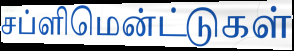
சப்ளிமென்ட்டுகள்